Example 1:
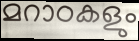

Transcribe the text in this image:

മറാഠകളും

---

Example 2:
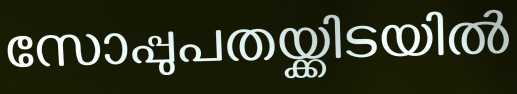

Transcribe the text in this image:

സോപ്പുപതയ്ക്കിടയിൽ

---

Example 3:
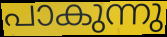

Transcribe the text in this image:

പാകുന്നു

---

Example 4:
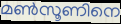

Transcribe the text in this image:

മൺസൂണിനെ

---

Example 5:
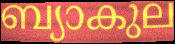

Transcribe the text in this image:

ബ്യാകുല